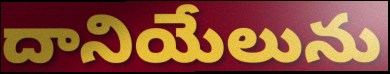
దానియేలును